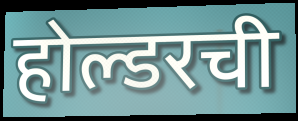
होल्डरची